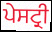
ਪੇਸਟ੍ਰੀ